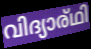
വിദ്യാര്ഥി